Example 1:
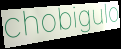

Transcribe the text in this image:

chobigulo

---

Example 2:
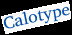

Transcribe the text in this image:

Calotype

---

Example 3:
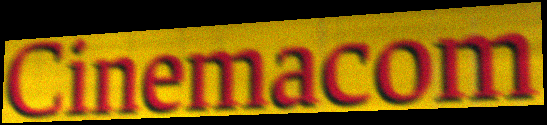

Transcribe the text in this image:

Cinemacom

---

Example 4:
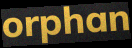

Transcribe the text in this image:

orphan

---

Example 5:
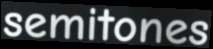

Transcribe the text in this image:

semitones